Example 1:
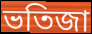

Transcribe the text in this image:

ভতিজা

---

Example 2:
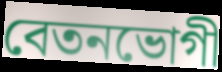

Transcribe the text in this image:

বেতনভোগী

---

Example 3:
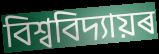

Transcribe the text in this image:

বিশ্ববিদ্যায়ৰ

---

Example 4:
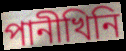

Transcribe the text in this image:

পানীখিনি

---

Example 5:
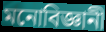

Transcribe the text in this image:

মনোবিজ্ঞানী